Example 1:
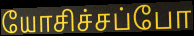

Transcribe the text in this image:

யோசிச்சப்போ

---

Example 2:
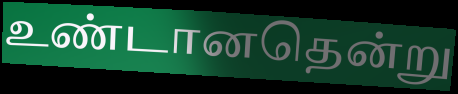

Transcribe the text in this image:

உண்டானதென்று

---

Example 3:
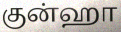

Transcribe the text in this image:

குன்ஹா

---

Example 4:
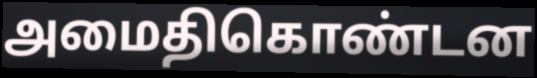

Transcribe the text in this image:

அமைதிகொண்டன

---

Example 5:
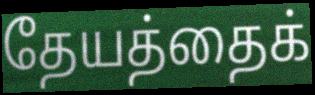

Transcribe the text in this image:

தேயத்தைக்